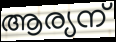
ആര്യന്